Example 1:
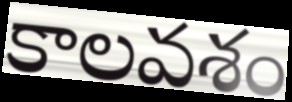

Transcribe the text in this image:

కాలవశం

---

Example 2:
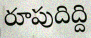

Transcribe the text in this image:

రూపుదిద్ది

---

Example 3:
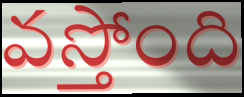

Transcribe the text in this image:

వస్తోంది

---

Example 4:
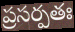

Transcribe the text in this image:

ప్రసర్పతః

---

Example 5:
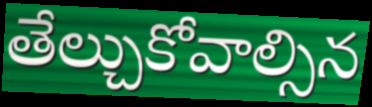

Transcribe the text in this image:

తేల్చుకోవాల్సిన